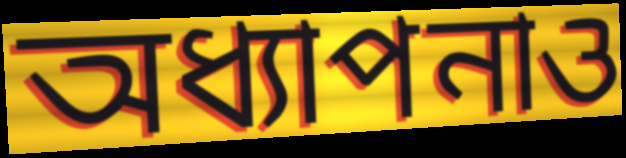
অধ্যাপনাও